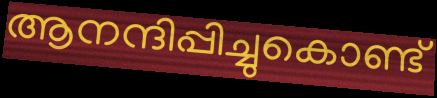
ആനന്ദിപ്പിച്ചുകൊണ്ട്